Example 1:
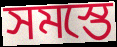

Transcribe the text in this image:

সমস্তে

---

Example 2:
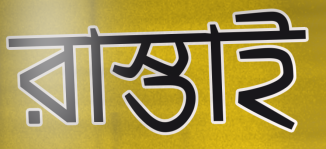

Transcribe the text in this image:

রাস্তাই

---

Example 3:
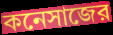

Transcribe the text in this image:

কনেসাজের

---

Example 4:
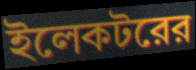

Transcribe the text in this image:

ইলেকটরের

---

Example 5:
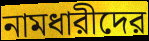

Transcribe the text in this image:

নামধারীদের